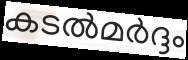
കടൽമർദ്ദം